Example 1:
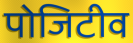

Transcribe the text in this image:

पोजिटीव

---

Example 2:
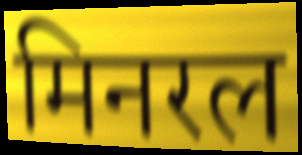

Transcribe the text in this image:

मिनरल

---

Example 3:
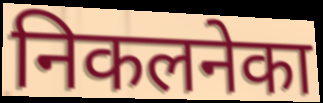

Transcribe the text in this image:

निकलनेका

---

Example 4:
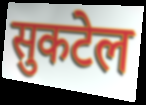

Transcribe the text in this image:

सुकटेल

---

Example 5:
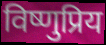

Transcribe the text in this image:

विष्णुप्रिय